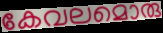
കേവലമൊരു